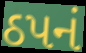
ઠપનં